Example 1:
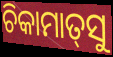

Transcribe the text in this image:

ଚିକାମାତ୍‌ସୁ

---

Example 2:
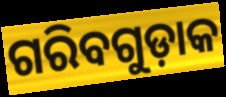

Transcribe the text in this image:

ଗରିବଗୁଡ଼ାକ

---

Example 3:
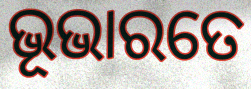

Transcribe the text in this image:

ଭୂଭାରତେ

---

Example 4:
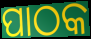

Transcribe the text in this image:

ପାଠକ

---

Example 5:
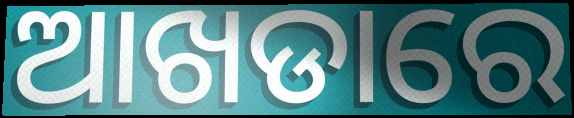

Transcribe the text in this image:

ଆଖଡାରେ